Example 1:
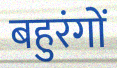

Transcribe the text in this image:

बहुरंगों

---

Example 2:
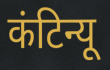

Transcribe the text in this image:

कंटिन्यू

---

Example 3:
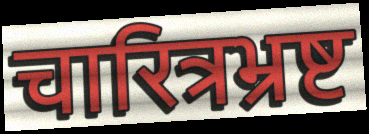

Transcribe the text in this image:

चारित्रभ्रष्ट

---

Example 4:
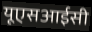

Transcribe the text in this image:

यूएसआईसी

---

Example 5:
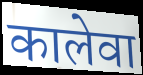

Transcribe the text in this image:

कालेवा